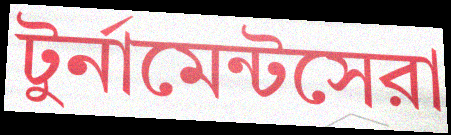
টুর্নামেন্টসেরা